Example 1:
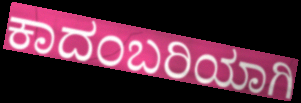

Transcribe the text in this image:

ಕಾದಂಬರಿಯಾಗಿ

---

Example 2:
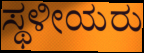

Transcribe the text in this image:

ಸ್ಥಳೀಯರು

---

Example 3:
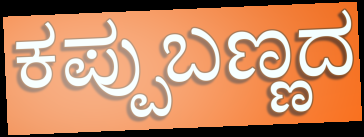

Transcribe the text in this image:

ಕಪ್ಪುಬಣ್ಣದ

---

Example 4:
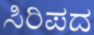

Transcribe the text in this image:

ಸಿರಿಪದ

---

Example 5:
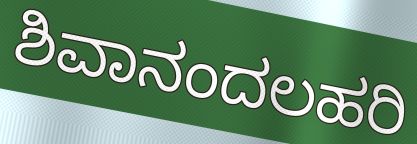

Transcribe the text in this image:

ಶಿವಾನಂದಲಹರಿ